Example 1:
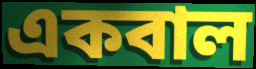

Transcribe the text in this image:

একবাল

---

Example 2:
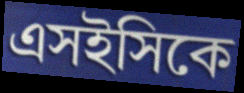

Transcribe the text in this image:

এসইসিকে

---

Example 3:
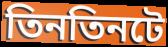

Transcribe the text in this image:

তিনতিনটে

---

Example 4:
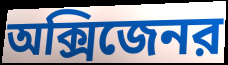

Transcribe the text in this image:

অক্সিজেনর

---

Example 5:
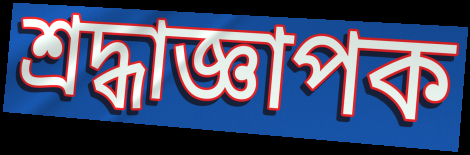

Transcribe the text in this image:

শ্রদ্ধাজ্ঞাপক